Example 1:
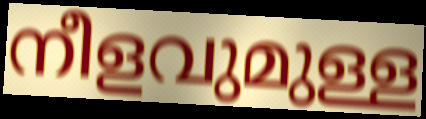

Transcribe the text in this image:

നീളവുമുള്ള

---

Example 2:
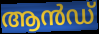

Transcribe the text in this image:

ആൻഡ്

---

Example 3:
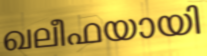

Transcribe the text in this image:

ഖലീഫയായി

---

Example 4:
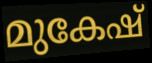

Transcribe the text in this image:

മുകേഷ്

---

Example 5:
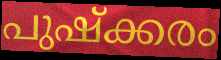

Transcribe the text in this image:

പുഷ്ക്കരം